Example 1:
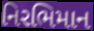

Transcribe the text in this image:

નિરભિમાન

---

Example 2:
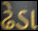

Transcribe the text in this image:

ઢેડા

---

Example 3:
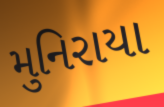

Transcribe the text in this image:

મુનિરાયા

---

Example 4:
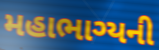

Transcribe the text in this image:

મહાભાગ્યની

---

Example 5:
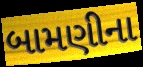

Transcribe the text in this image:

બામણીના